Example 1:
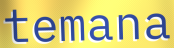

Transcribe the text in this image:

temana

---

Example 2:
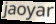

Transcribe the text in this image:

jaoyar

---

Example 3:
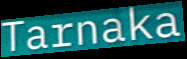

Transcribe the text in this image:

Tarnaka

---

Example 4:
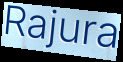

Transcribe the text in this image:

Rajura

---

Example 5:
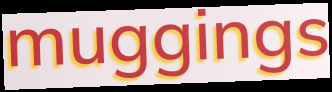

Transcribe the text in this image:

muggings